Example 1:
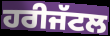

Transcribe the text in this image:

ਹਰੀਜੱਟਲ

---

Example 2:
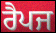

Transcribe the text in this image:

ਰੈਪਜ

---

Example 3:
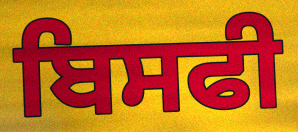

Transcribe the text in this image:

ਬਿਸਫੀ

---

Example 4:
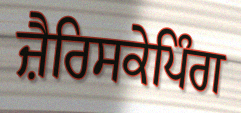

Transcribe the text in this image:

ਜ਼ੈਰਿਸਕੇਪਿੰਗ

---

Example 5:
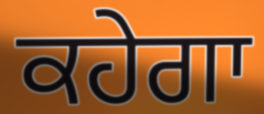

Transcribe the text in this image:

ਕਹੇਗਾ